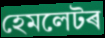
হেমলেটৰ